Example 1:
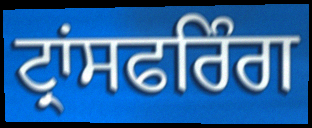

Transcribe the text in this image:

ਟ੍ਰਾਂਸਫਰਿੰਗ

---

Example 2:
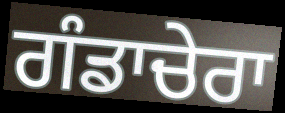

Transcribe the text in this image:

ਗੰਡਾਚੇਰਾ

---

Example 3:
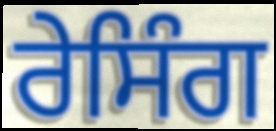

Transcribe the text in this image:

ਰੇਸਿੰਗ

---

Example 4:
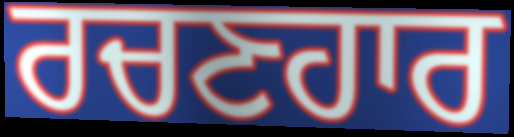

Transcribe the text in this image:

ਰਚਣਹਾਰ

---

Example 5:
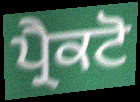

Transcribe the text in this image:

ਪ੍ਰੈਕਟੋ